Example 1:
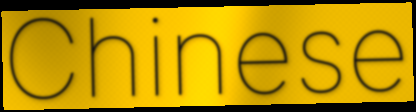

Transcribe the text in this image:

Chinese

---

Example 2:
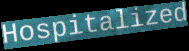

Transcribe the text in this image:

Hospitalized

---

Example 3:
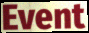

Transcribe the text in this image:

Event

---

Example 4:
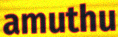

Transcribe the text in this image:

amuthu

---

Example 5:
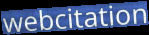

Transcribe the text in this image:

webcitation